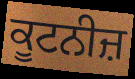
ਕੂਟਨੀਜ਼